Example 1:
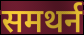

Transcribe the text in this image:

समथर्न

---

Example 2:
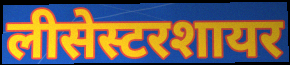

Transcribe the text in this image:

लीसेस्टरशायर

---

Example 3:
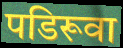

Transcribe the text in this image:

पडिरूवा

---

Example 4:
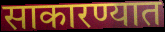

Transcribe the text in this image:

साकारण्यात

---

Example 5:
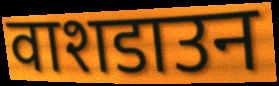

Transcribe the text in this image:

वाशडाउन